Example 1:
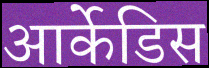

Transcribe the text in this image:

आर्केडिस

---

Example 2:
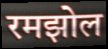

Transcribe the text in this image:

रमझोल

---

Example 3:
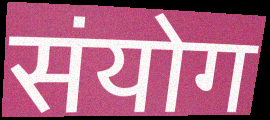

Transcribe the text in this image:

संयोग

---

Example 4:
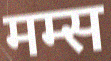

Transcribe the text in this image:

मम्स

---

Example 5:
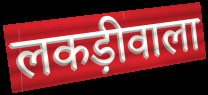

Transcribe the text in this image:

लकड़ीवाला